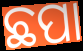
ଛପା